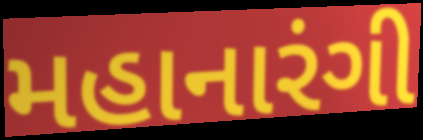
મહાનારંગી